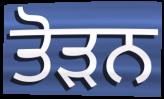
ਤੋੜਨ